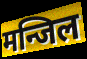
मन्जिल